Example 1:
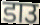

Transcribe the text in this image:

डाउ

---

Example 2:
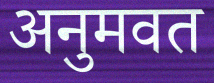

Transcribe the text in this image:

अनुमवत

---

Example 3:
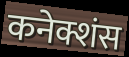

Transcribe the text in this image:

कनेक्शंस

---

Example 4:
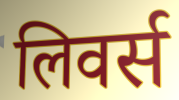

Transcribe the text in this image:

लिवर्स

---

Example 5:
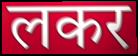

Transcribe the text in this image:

लकर